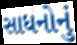
સાધનોનું